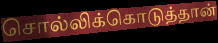
சொல்லிக்கொடுத்தான்